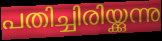
പതിച്ചിരിയ്ക്കുന്നു